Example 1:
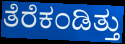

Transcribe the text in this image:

ತೆರೆಕಂಡಿತ್ತು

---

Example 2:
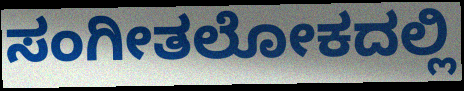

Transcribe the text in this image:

ಸಂಗೀತಲೋಕದಲ್ಲಿ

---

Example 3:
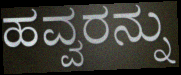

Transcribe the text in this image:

ಹವ್ವರನ್ನು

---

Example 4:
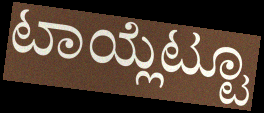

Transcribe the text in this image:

ಟಾಯ್ಲೆಟ್ಟೂ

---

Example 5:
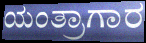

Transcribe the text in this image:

ಯಂತ್ರಾಗಾರ